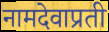
नामदेवाप्रती